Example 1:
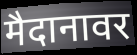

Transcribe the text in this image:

मैदानावर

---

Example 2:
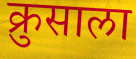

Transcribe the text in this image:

क्रुसाला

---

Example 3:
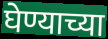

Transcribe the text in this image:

घेण्याच्या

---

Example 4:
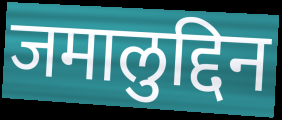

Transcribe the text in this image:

जमालुद्दिन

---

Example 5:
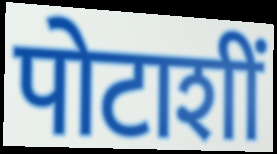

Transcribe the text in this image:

पोटाशीं